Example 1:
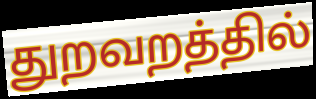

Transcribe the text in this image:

துறவறத்தில்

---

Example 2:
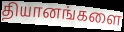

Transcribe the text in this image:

தியானங்களை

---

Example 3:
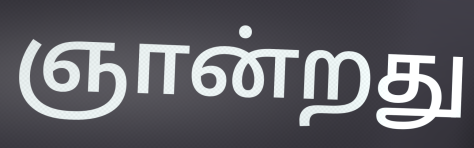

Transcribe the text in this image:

ஞான்றது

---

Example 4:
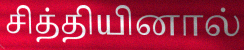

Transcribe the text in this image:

சித்தியினால்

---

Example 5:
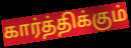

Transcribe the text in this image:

கார்த்திக்கும்